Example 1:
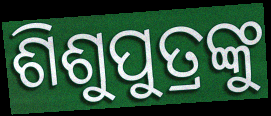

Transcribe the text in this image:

ଶିଶୁପୁତ୍ରଙ୍କୁ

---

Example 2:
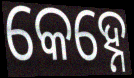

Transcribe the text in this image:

କେହ୍ନେ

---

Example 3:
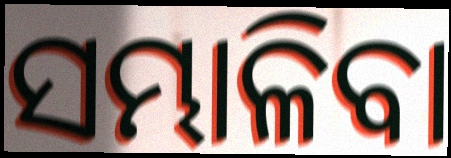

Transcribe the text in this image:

ସମ୍ଭାଳିବା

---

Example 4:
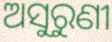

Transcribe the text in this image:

ଅସୁରୁଣୀ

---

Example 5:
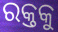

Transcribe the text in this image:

ରକ୍ତକୁ